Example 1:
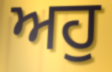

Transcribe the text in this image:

ਅਹੁ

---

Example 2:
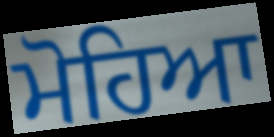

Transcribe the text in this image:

ਮੋਹਿਆ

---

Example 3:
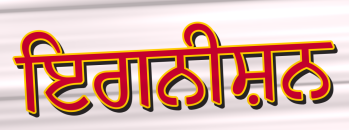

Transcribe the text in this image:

ਇਗਨੀਸ਼ਨ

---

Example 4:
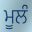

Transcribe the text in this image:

ਮੂਲੰ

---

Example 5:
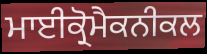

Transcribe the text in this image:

ਮਾਈਕ੍ਰੋਮੈਕਨੀਕਲ